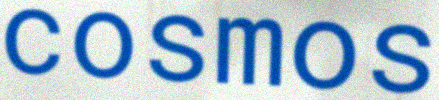
cosmos